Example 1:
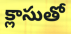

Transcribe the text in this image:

క్లాసుతో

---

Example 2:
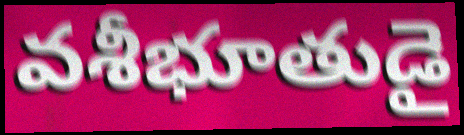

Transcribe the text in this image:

వశీభూతుడై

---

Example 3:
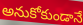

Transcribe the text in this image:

అనుకోకుండానే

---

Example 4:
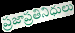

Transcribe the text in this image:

ప్రజాప్రతినిధులు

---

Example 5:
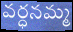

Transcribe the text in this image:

వర్ధనమ్మ